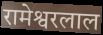
रामेश्वरलाल